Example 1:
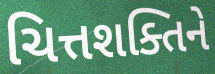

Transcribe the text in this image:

ચિત્તશક્તિને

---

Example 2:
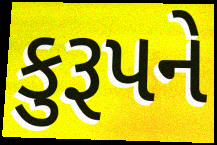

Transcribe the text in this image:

કુરૂપને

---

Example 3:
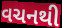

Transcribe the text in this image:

વચનથી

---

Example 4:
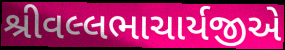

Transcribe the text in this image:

શ્રીવલ્લભાચાર્યજીએ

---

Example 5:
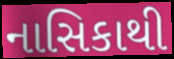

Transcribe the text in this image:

નાસિકાથી